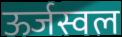
ऊर्जस्वल